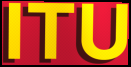
ITU